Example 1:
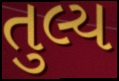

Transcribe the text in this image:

તુલ્ય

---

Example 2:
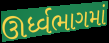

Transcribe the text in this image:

ઊર્ધ્વભાગમાં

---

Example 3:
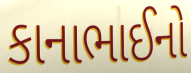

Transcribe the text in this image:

કાનાભાઈનો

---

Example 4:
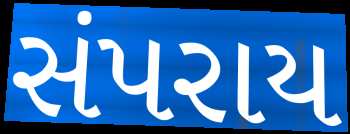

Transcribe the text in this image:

સંપરાય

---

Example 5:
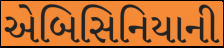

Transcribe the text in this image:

એબિસિનિયાની